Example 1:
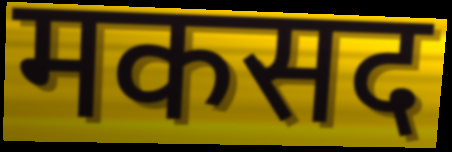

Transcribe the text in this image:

मकसद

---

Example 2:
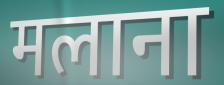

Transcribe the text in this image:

मलाना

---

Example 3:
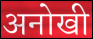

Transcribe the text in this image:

अनोखी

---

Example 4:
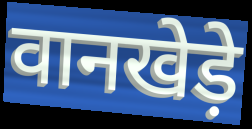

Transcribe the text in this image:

वानखेड़े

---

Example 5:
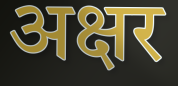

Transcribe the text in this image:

अक्षर